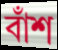
বাঁশ